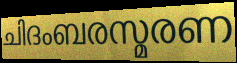
ചിദംബരസ്മരണ